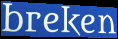
breken